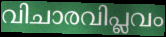
വിചാരവിപ്ലവം